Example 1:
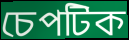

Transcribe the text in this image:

চেপটিক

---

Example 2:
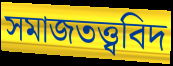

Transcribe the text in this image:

সমাজতত্ত্ববিদ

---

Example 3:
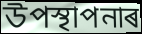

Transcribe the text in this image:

উপস্থাপনাৰ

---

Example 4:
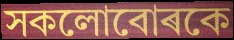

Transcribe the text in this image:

সকলোবোৰকে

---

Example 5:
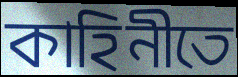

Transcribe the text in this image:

কাহিনীতে